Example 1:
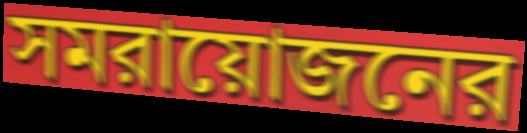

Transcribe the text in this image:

সমরায়োজনের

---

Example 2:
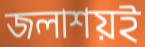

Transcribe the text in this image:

জলাশয়ই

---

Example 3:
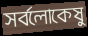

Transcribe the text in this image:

সর্বলোকেষু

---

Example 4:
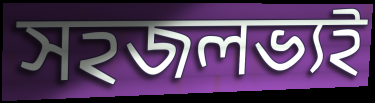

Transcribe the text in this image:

সহজলভ্যই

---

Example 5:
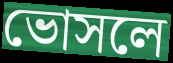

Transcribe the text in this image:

ভোসলে